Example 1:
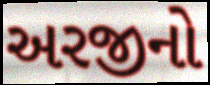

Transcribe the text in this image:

અરજીનો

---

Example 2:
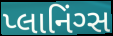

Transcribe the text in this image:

પ્લાનિંગ્સ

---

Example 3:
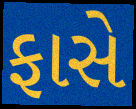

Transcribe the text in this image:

ફાસે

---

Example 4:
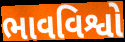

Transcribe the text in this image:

ભાવવિશ્વો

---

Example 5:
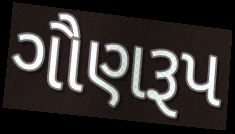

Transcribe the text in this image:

ગૌણરૂપ